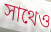
সাথেও